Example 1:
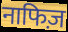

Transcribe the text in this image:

नाफिज़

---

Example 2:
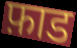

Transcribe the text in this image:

फ़ाड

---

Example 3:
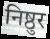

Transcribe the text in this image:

निष्ठुर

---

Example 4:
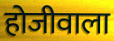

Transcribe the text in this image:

होजीवाला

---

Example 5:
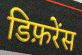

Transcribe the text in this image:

डिफ़रेंस